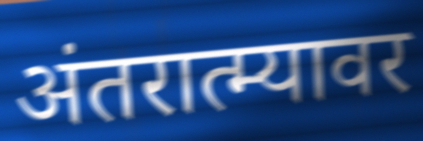
अंतरात्म्यावर